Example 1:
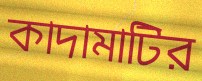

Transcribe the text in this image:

কাদামাটির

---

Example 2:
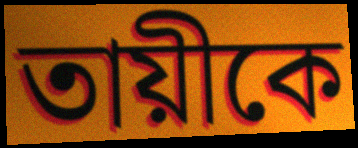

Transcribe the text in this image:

তায়ীকে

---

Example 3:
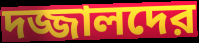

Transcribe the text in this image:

দজ্জালদের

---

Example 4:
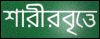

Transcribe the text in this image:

শারীরবৃত্তে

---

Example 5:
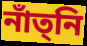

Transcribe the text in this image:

নাঁত্‌নি